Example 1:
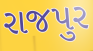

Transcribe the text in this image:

રાજપુર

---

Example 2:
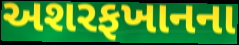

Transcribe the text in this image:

અશરફખાનના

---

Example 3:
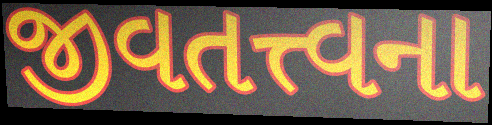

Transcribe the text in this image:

જીવતત્ત્વના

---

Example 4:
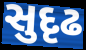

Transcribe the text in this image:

સુદૃઢ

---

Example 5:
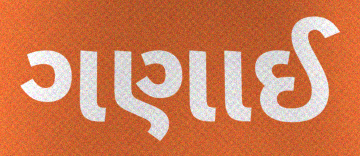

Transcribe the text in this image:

ગણાઈ